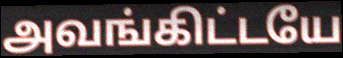
அவங்கிட்டயே